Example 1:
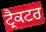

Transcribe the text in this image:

ਟ੍ਰੈਕਟਰ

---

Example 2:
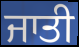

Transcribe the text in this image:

ਜਾਤੀ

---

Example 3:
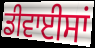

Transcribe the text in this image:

ਡੀਵਾਈਸਾਂ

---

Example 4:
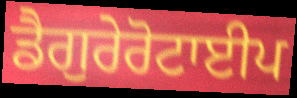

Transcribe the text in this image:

ਡੈਗੁਰੇਰੋਟਾਈਪ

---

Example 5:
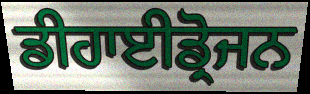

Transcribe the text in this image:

ਡੀਹਾਈਡ੍ਰੋਜਨ